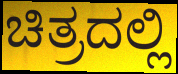
ಚಿತ್ರದಲ್ಲಿ